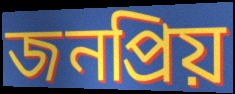
জনপ্ৰিয়